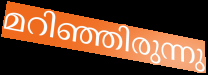
മറിഞ്ഞിരുന്നു